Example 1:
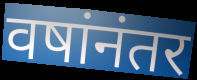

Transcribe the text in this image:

वषांनंतर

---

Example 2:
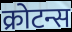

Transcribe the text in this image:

क्रोटन्स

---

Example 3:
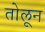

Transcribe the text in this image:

तोलून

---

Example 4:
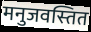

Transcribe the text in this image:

मनुजवस्तित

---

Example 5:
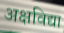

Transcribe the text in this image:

अक्षविद्या